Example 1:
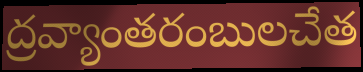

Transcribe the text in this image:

ద్రవ్యాంతరంబులచేత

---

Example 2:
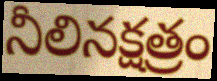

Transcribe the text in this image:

నీలినక్షత్రం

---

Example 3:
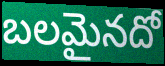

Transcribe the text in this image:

బలమైనదో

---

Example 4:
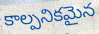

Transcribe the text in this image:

కాల్పనికమైన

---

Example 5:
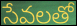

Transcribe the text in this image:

సేవలతో